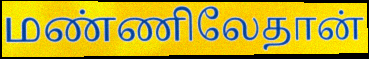
மண்ணிலேதான்